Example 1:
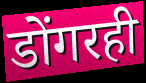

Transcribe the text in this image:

डोंगरही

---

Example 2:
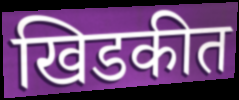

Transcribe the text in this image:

खिडकीत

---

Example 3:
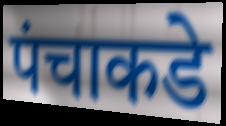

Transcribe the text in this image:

पंचाकडे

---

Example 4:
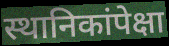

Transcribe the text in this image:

स्थानिकांपेक्षा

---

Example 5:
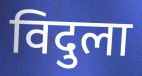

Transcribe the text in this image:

विदुला